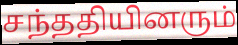
சந்ததியினரும்